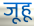
जूहू